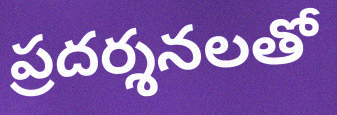
ప్రదర్శనలతో